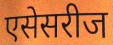
एसेसरीज